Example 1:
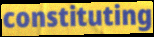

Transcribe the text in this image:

constituting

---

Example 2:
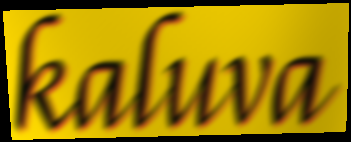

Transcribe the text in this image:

kaluva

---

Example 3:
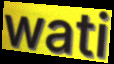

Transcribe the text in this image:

wati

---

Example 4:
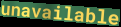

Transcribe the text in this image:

unavailable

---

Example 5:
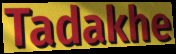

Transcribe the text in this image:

Tadakhe